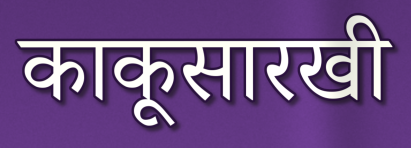
काकूसारखी